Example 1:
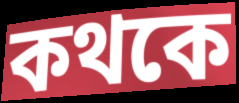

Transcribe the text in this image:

কথকে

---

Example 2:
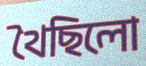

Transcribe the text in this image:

থৈছিলো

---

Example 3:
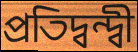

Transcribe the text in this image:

প্ৰতিদ্বন্দ্বী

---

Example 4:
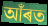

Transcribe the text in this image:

আঁৰত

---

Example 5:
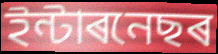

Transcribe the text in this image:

ইন্টাৰনেছৰ